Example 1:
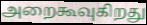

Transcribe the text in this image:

அறைகூவுகிறது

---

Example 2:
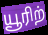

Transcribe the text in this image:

யூரிற்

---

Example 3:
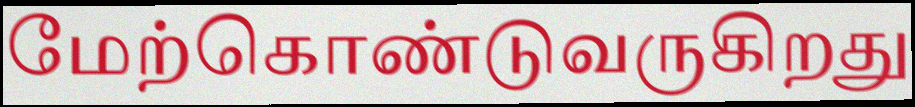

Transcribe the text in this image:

மேற்கொண்டுவருகிறது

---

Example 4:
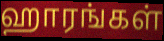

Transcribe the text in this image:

ஹாரங்கள்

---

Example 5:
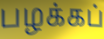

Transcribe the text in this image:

பழக்கப்